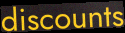
discounts